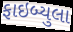
ફાઇબ્યુલા